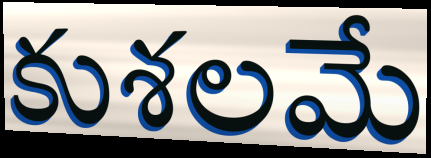
కుశలమే